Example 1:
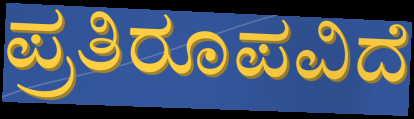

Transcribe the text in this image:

ಪ್ರತಿರೂಪವಿದೆ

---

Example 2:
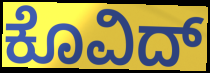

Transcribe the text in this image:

ಕೊವಿದ್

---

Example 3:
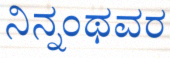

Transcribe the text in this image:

ನಿನ್ನಂಥವರ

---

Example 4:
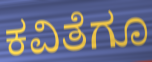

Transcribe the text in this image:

ಕವಿತೆಗೂ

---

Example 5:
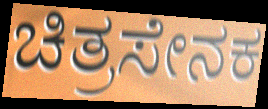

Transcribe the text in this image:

ಚಿತ್ರಸೇನಕ